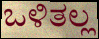
ಒಳಿತಲ್ಲ